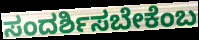
ಸಂದರ್ಶಿಸಬೇಕೆಂಬ